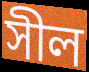
সীল